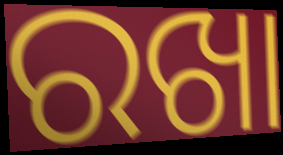
ରଖା